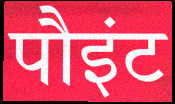
पौइंट